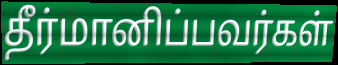
தீர்மானிப்பவர்கள்